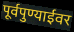
पूर्वपुण्याईवर